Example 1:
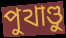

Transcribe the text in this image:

পুথাণ্ডু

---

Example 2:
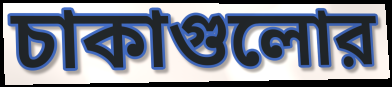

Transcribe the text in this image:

চাকাগুলোর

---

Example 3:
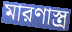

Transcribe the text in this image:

মারণাস্ত্র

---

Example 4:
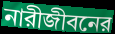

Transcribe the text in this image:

নারীজীবনের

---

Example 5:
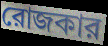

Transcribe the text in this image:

রোজকার